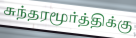
சுந்தரமூர்த்திக்கு